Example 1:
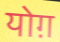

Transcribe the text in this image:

योग़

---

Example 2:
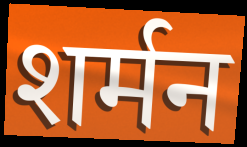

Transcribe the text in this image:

शर्मन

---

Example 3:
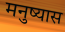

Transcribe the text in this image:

मनुष्यास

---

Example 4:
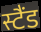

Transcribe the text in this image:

स्‍टैंड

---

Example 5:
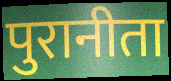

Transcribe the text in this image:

पुरानीता